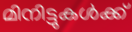
മിനിട്ടുകൾക്ക്